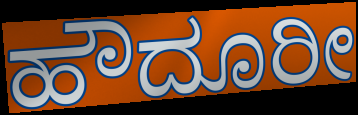
ಹೌದೂರೀ